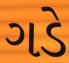
ગડે